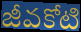
జీవకోటి